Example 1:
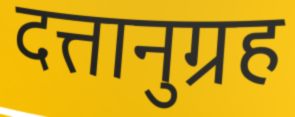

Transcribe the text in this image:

दत्तानुग्रह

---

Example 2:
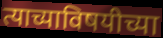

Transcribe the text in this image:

त्याच्याविषयीच्या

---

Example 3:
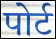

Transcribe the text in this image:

पोर्ट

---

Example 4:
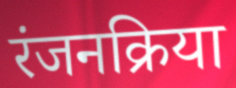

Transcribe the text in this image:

रंजनक्रिया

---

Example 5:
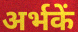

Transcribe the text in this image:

अर्भकें